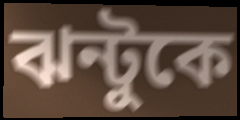
ঝন্টুকে